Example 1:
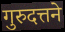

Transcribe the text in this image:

गुरुदत्तने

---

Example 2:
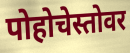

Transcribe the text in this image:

पोहोचेस्तोवर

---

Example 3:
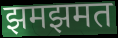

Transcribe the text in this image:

झमझमत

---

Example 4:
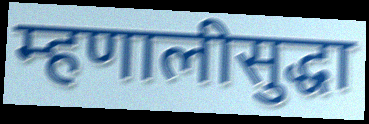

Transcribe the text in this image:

म्हणालीसुद्धा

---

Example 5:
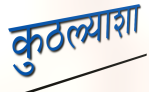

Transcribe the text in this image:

कुठल्याशा